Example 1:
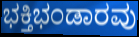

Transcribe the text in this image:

ಭಕ್ತಿಭಂಡಾರವು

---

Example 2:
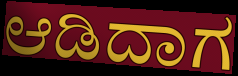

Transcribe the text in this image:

ಆಡಿದಾಗ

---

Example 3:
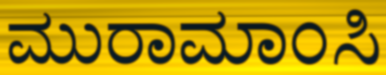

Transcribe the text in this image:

ಮುರಾಮಾಂಸಿ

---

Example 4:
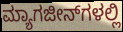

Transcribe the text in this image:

ಮ್ಯಾಗಜೀನ್‌ಗಳಲ್ಲಿ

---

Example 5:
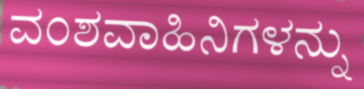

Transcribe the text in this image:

ವಂಶವಾಹಿನಿಗಳನ್ನು